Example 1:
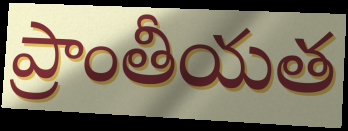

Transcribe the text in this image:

ప్రాంతీయత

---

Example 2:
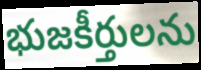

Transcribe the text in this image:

భుజకీర్తులను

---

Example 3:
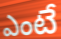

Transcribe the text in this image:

ఎంటే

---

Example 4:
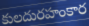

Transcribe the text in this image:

కులదురహంకార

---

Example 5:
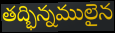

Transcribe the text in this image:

తద్భిన్నములైన